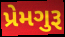
પ્રેમગુરૂ